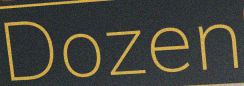
Dozen